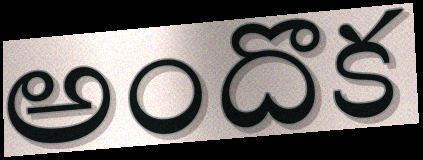
అందొక